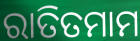
ରାତିତମାମ